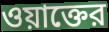
ওয়াক্তের